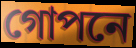
গোপনে